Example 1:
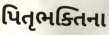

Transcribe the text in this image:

પિતૃભક્તિના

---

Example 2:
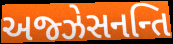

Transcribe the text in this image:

અજ્ઝેસનન્તિ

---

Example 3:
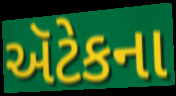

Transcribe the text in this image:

ઍટેકના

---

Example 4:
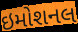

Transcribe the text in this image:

ઇમોશનલ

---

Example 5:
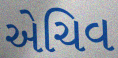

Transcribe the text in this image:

એચિવ